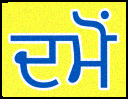
ਦਮੋਂ